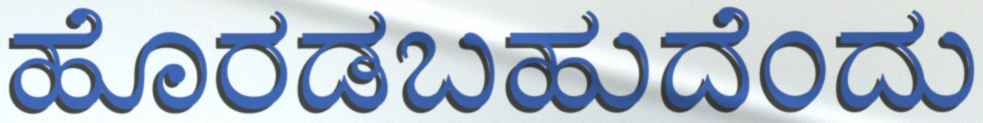
ಹೊರಡಬಹುದೆಂದು